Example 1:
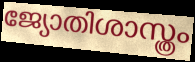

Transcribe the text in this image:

ജ്യോതിശാസ്ത്രം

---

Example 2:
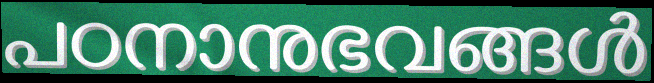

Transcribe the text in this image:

പഠനാനുഭവങ്ങൾ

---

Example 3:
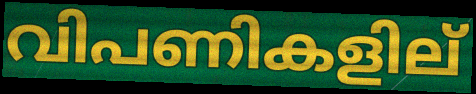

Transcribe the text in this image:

വിപണികളില്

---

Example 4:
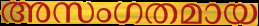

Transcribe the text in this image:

അസംഗതമായ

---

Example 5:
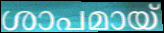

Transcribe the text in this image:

ശാപമായ്